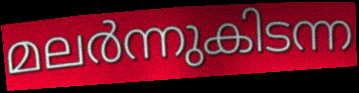
മലർന്നുകിടന്ന